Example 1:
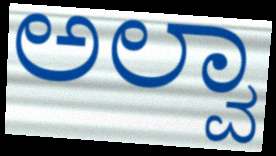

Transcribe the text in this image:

ಅಲ್ವಾ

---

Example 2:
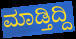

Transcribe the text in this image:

ಮಾಡ್ತಿದ್ದಿ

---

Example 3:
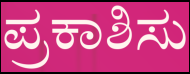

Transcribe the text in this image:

ಪ್ರಕಾಶಿಸು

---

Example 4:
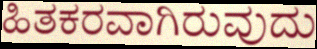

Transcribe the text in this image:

ಹಿತಕರವಾಗಿರುವುದು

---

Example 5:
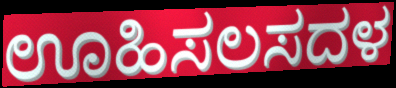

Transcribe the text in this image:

ಊಹಿಸಲಸದಳ